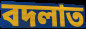
বদলাত